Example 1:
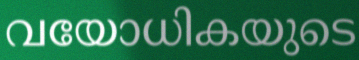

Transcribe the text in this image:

വയോധികയുടെ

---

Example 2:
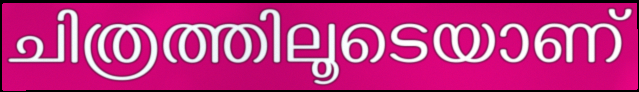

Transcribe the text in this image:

ചിത്രത്തിലൂടെയാണ്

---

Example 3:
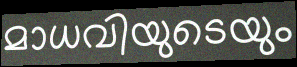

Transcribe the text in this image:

മാധവിയുടെയും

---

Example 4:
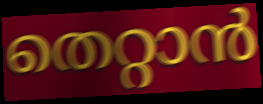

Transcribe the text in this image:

തെറ്റാൻ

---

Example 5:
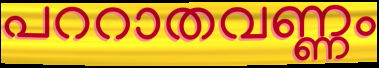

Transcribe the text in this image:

പററാതവണ്ണം